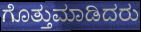
ಗೊತ್ತುಮಾಡಿದರು